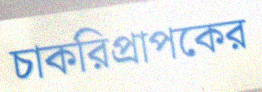
চাকরিপ্রাপকের